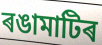
ৰঙামাটিৰ